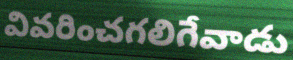
వివరించగలిగేవాడు